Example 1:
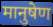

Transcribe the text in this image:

मानुषेण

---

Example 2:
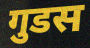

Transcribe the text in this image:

गुडस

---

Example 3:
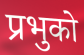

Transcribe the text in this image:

प्रभुको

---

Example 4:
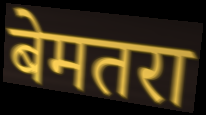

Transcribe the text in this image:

बेमतरा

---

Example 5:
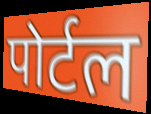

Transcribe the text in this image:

पोर्टल